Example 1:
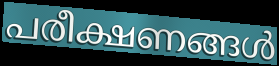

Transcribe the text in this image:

പരീക്ഷണങ്ങൾ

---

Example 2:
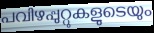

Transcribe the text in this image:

പവിഴപ്പുറ്റുകളുടെയും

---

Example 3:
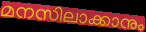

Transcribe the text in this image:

മനസിലാക്കാനും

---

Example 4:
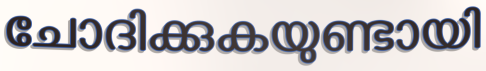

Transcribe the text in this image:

ചോദിക്കുകയുണ്ടായി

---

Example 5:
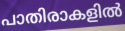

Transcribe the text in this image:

പാതിരാകളിൽ